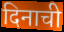
दिनाची